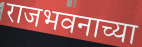
राजभवनाच्या